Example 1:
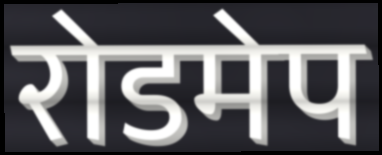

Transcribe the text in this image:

रोडमेप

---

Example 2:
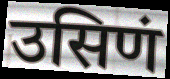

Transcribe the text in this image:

उसिणं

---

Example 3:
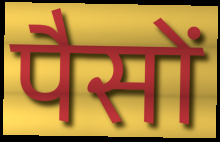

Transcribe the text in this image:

पैसों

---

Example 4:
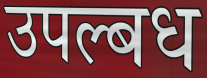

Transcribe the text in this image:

उपल्‍बध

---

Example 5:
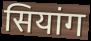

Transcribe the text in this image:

सियांग